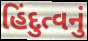
હિંદુત્વનું